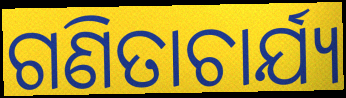
ଗଣିତାଚାର୍ଯ୍ୟ